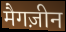
मैगज़ीन